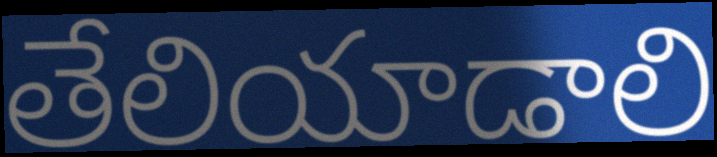
తేలియాడాలి